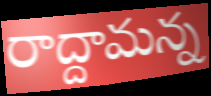
రాద్దామన్న